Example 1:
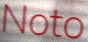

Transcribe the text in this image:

Noto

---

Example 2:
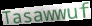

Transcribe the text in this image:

Tasawwuf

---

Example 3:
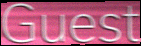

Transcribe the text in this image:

Guest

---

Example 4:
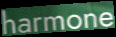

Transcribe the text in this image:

harmone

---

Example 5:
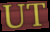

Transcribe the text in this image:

UT